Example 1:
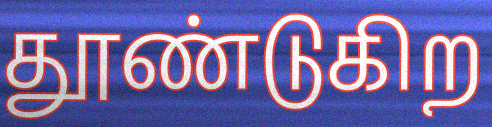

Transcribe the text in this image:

தூண்டுகிற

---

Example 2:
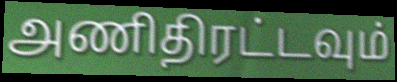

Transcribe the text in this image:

அணிதிரட்டவும்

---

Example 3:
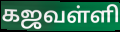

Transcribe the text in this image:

கஜவள்ளி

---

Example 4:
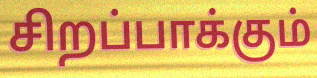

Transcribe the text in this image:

சிறப்பாக்கும்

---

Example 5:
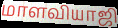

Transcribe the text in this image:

மாளவியாஜி